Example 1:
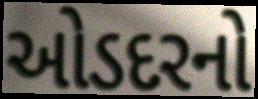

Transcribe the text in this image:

ઓડદરનો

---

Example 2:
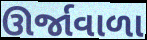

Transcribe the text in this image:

ઊર્જાવાળા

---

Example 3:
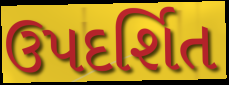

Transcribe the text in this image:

ઉપદર્શિત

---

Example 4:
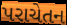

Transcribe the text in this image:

પરાચેતન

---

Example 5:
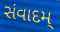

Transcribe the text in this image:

સંવાદમ્